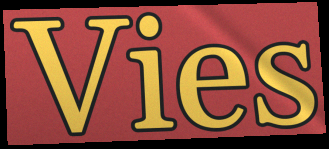
Vies